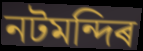
নটমন্দিৰ